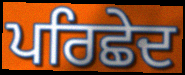
ਪਰਿਛੇਦ